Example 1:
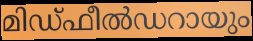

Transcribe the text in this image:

മിഡ്ഫീൽഡറായും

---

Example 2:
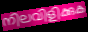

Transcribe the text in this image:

നിലവിളിക്കുക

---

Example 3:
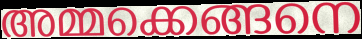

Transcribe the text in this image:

അമ്മക്കെങ്ങനെ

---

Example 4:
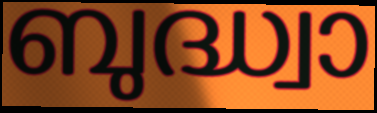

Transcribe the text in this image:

ബുദ്ധ്വാ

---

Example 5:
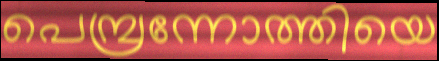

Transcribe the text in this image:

പെമ്പ്രന്നോത്തിയെ